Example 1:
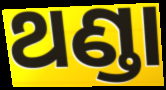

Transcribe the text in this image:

ଥଣ୍ଡା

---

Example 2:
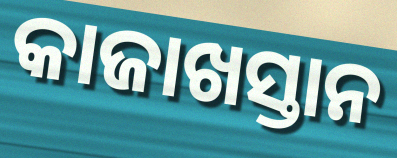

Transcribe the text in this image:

କାଜାଖସ୍ତାନ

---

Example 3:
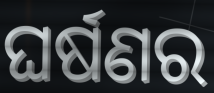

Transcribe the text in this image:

ଘର୍ଷଣର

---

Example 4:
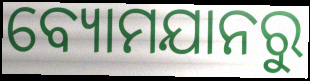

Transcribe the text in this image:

ବ୍ୟୋମଯାନରୁ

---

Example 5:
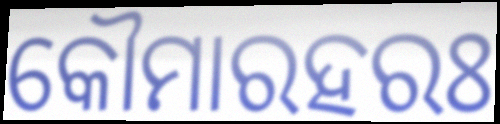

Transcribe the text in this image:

କୌମାରହରଃ